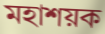
মহাশয়ক